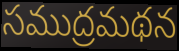
సముద్రమథన